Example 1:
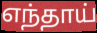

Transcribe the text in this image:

எந்தாய்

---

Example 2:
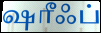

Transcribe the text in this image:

ஷரீஃப்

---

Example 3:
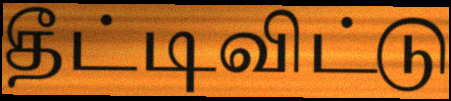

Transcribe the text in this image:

தீட்டிவிட்டு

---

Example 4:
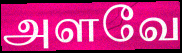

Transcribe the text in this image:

அளவே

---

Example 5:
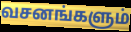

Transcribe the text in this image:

வசனங்களும்